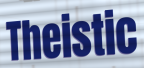
Theistic